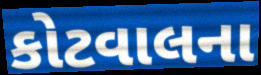
કોટવાલના